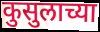
कुसुलाच्या